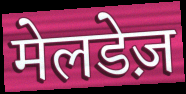
मेलडेज़